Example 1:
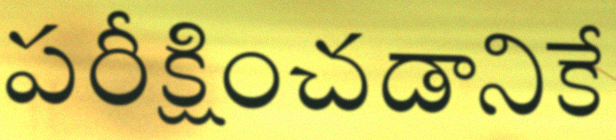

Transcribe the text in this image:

పరీక్షించడానికే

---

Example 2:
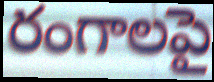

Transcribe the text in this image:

రంగాలపై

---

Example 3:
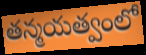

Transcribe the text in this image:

తన్మయత్వంలో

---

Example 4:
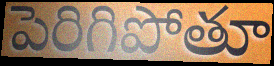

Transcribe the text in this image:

పెరిగిపోతూ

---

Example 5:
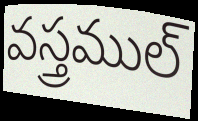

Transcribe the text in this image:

వస్త్రముల్